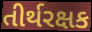
તીર્થરક્ષક